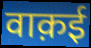
वाक़ई